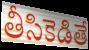
తీసికెడితే